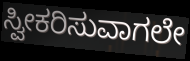
ಸ್ವೀಕರಿಸುವಾಗಲೇ